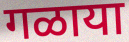
गळाया